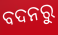
ବଦନରୁ